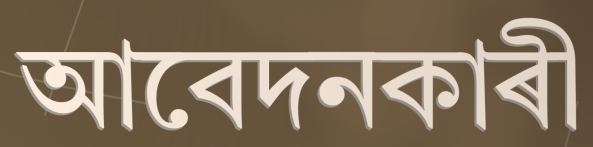
আবেদনকাৰী